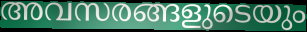
അവസരങ്ങളുടെയും